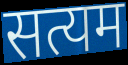
सत्यम